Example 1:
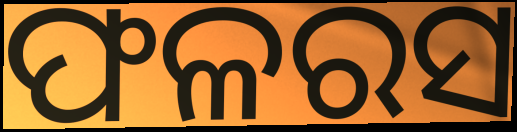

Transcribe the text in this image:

ଫଳରସ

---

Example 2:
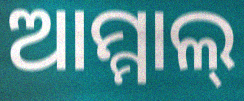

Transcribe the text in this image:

ଆମ୍ମାଲ୍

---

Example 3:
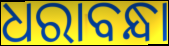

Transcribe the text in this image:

ଧରାବନ୍ଧା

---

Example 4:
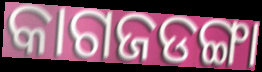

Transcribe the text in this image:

କାଗଜଡଙ୍ଗା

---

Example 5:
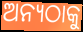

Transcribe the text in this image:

ଅନ୍ୟଠାକୁ